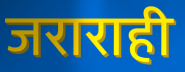
जराराही